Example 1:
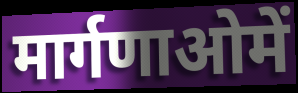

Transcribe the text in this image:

मार्गणाओमें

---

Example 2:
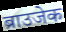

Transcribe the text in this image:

ब्राउजेक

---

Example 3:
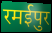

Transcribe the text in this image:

रमईपुर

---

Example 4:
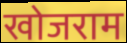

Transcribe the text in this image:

खोजराम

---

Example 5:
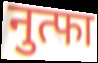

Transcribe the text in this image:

नुत्फा